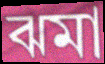
ঝমা